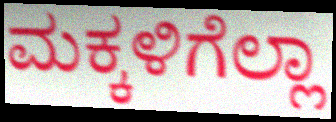
ಮಕ್ಕಳಿಗೆಲ್ಲಾ